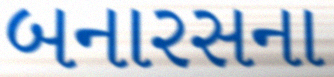
બનારસના